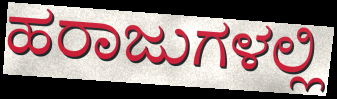
ಹರಾಜುಗಳಲ್ಲಿ